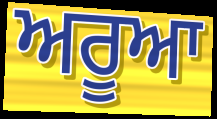
ਅਰੂਆ